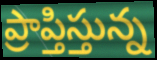
ప్రాప్తిస్తున్న